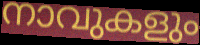
നാവുകളും